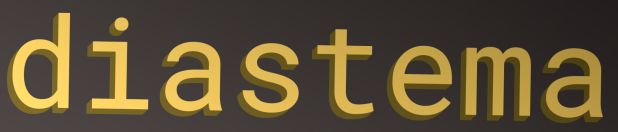
diastema